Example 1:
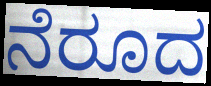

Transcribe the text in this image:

ನೆರೂದ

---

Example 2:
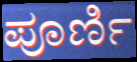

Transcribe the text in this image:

ಪೂರ್ಣಿ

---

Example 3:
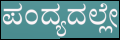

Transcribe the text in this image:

ಪಂದ್ಯದಲ್ಲೇ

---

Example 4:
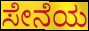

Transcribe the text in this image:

ಸೇನೆಯ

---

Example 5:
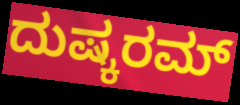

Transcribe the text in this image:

ದುಷ್ಕರಮ್